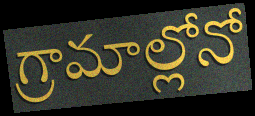
గ్రామాల్లోనో